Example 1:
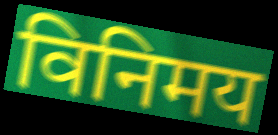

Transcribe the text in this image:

विनिमय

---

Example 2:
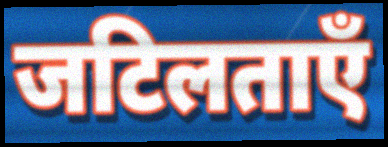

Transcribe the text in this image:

जटिलताएँ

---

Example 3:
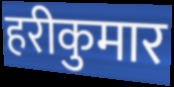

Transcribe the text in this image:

हरीकुमार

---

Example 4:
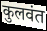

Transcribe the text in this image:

कुलवंत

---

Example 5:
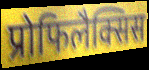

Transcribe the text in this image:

प्रोफिलैक्सिस